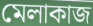
মেলাকাজ